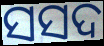
ସସଦ